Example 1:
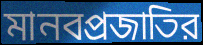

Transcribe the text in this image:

মানবপ্রজাতির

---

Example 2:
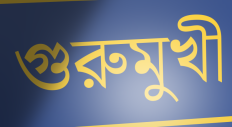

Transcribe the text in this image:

গুরুমুখী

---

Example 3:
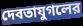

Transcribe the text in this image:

দেবতাযুগলের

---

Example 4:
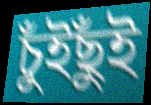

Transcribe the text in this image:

চুঁইছুঁই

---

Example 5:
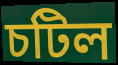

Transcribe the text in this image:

চটিল